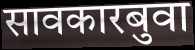
सावकारबुवा